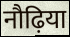
नौढ़िया